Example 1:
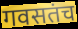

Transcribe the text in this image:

गवसतंच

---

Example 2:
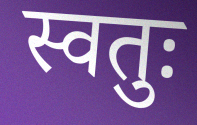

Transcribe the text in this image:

स्वतुः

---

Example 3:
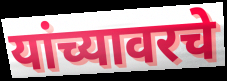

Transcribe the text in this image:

यांच्यावरचे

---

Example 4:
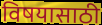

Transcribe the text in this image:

विषयासाठी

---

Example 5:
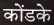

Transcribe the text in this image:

कोंडके